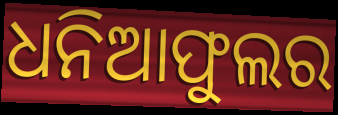
ଧନିଆଫୁଲର